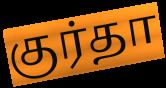
குர்தா